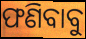
ଫଣିବାବୁ